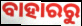
ବାହାରରୁ